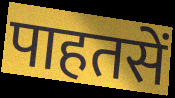
पाहतसें